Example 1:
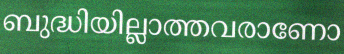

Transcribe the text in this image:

ബുദ്ധിയില്ലാത്തവരാണോ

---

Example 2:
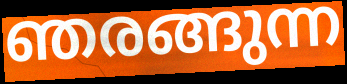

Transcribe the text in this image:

ഞരങ്ങുന്ന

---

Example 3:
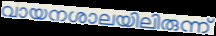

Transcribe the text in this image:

വായനശാലയിലിരുന്ന്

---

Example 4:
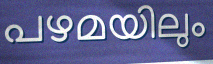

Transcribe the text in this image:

പഴമയിലും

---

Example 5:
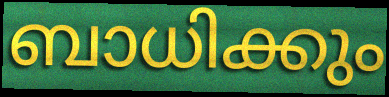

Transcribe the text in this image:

ബാധിക്കും